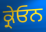
ਕ੍ਰੇਓਨ